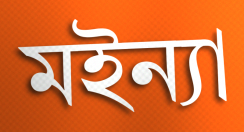
মইন্যা